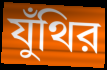
যুঁথির